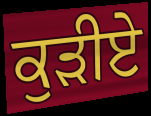
ਕੁੜੀਏ